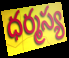
ధర్మస్య